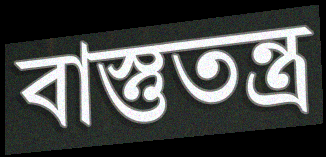
বাস্তুতন্ত্র